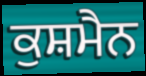
ਕੁਸ਼ਮੈਨ